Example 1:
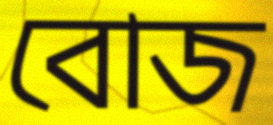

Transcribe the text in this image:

বোজ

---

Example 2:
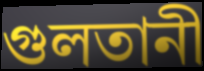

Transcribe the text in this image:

গুলতানী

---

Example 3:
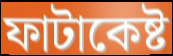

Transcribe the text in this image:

ফাটাকেষ্ট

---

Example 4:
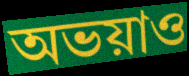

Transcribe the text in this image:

অভয়াও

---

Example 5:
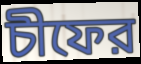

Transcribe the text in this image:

চীফের